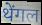
थेंगल